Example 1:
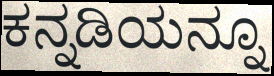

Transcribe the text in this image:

ಕನ್ನಡಿಯನ್ನೂ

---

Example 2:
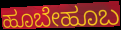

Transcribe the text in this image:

ಹೂಬೇಹೂಬ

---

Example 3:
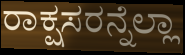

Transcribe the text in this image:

ರಾಕ್ಷಸರನ್ನೆಲ್ಲಾ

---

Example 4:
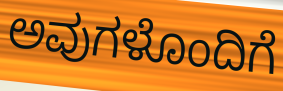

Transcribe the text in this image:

ಅವುಗಳೊಂದಿಗೆ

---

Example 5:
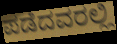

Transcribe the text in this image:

ಪಡೆದವರಲ್ಲಿ